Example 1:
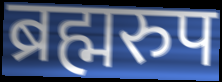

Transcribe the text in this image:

ब्रह्मरुप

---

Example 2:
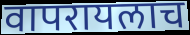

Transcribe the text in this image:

वापरायलाच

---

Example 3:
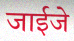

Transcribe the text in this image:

जाईजे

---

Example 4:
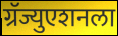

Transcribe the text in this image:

ग्रॅज्युएशनला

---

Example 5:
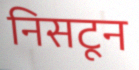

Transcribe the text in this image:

निसटून